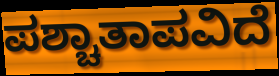
ಪಶ್ಚಾತಾಪವಿದೆ